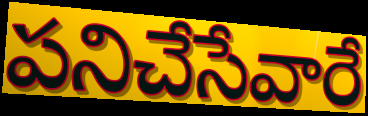
పనిచేసేవారే